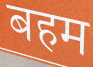
बहम